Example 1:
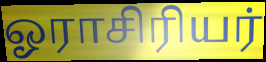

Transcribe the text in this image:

ஓராசிரியர்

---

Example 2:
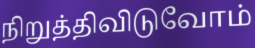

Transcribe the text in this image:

நிறுத்திவிடுவோம்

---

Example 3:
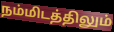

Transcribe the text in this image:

நம்மிடத்திலும்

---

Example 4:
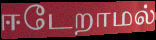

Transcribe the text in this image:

ஈடேறாமல்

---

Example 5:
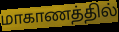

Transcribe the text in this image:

மாகாணத்தில்